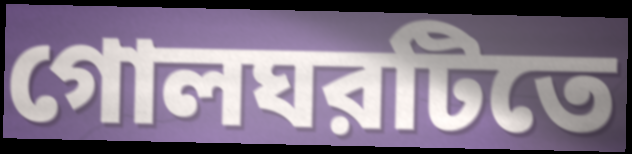
গোলঘরটিতে